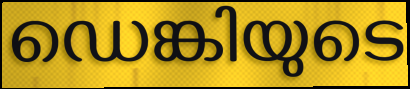
ഡെങ്കിയുടെ